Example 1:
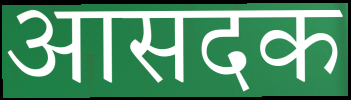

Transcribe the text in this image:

आसदक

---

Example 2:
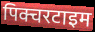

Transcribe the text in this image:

पिक्चरटाइम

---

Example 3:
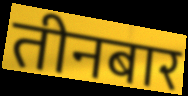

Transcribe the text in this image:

तीनबार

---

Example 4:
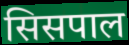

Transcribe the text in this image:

सिसपाल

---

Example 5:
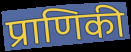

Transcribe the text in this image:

प्राणिकी